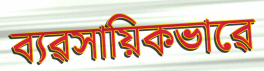
ব্যৱসায়িকভাৱে